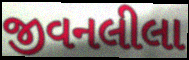
જીવનલીલા